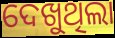
ଦେଖୁଥିଲା